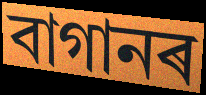
বাগানৰ